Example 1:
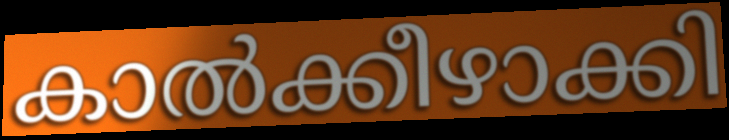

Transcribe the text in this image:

കാൽക്കീഴാക്കി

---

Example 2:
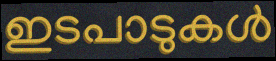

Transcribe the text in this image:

ഇടപാടുകൾ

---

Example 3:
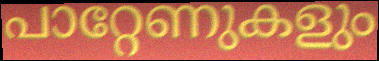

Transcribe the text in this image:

പാറ്റേണുകളും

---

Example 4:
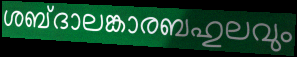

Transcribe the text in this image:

ശബ്ദാലങ്കാരബഹുലവും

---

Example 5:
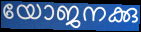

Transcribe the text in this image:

യോജനക്കു